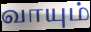
வாயும்